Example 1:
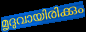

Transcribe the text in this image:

മൃദുവായിരിക്കും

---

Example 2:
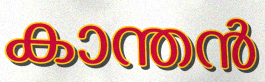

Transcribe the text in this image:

കാന്തൻ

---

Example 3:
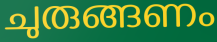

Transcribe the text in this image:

ചുരുങ്ങണം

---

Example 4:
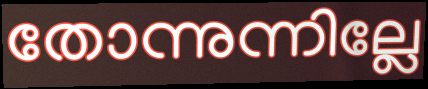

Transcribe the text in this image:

തോന്നുന്നില്ലേ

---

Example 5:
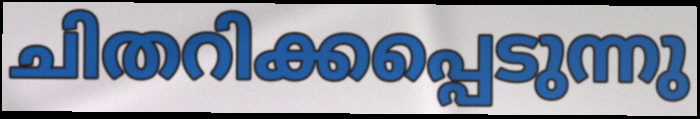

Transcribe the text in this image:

ചിതറിക്കപ്പെടുന്നു